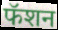
फॅशन